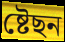
ষ্টেছন